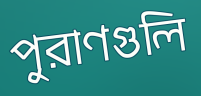
পুরাণগুলি